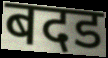
बदड